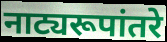
नाट्यरूपांतरे